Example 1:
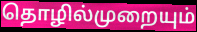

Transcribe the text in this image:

தொழில்முறையும்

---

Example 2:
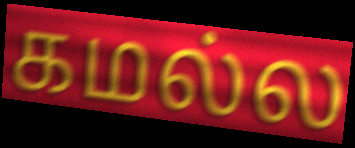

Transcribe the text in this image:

கமல்ல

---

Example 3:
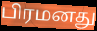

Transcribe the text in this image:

பிரமனது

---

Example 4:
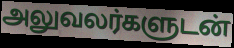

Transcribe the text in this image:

அலுவலர்களுடன்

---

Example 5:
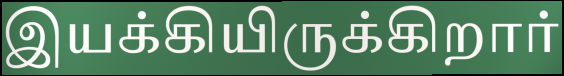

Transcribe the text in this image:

இயக்கியிருக்கிறார்